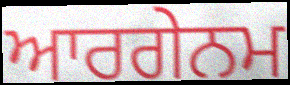
ਆਰਗੇਨਮ